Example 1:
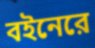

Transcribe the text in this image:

বইনেরে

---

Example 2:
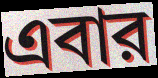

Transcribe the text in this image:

এবার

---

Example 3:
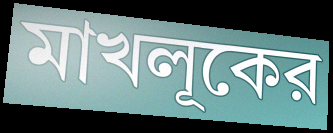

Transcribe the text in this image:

মাখলূকের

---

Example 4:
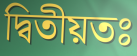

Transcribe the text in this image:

দ্বিতীয়তঃ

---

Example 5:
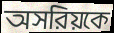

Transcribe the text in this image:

অসরিয়কে